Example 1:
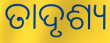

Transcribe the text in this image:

ତାଦୃଶ୍ୟ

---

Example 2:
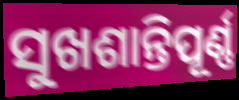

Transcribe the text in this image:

ସୁଖଶାନ୍ତିପୂର୍ଣ୍ଣ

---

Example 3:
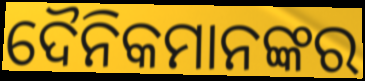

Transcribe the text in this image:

ଦୈନିକମାନଙ୍କର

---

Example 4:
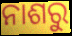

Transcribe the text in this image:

ନାଶରୁ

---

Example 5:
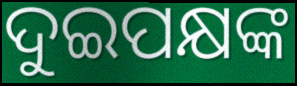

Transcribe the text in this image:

ଦୁଇପକ୍ଷଙ୍କ